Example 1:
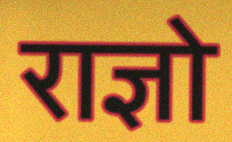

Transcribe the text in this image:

राज्ञो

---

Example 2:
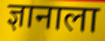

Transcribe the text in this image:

ज्ञानाला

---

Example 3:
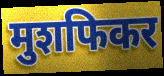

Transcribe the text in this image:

मुशफिकर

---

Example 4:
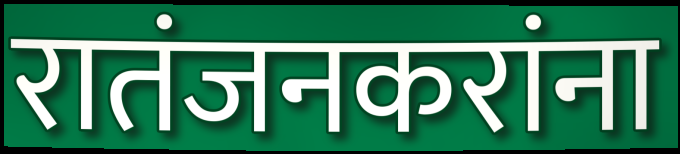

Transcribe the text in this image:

रातंजनकरांना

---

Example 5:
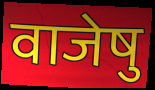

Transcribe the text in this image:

वाजेषु